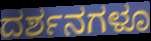
ದರ್ಶನಗಳೂ